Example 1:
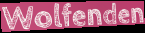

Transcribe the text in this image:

Wolfenden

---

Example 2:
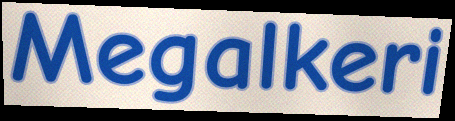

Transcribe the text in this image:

Megalkeri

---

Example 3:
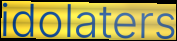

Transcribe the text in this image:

idolaters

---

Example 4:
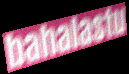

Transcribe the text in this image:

bahalastu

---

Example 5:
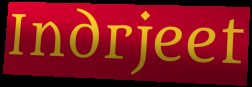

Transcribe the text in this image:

Indrjeet